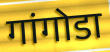
गांगोडा